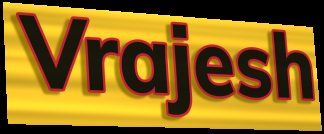
Vrajesh